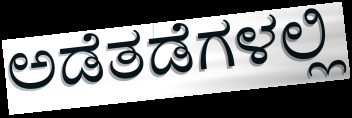
ಅಡೆತಡೆಗಳಲ್ಲಿ